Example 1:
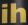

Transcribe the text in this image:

ih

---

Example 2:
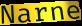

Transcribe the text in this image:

Narne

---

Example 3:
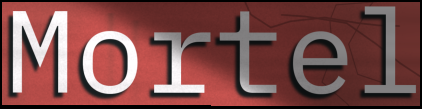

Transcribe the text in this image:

Mortel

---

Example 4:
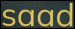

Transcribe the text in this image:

saad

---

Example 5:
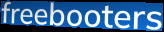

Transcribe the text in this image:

freebooters